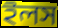
ইলস